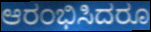
ಆರಂಭಿಸಿದರೂ